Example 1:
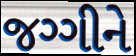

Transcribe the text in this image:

જગ્ગીને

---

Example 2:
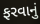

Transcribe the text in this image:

ફરવાનું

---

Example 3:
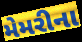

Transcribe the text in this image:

મેમરીના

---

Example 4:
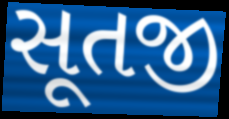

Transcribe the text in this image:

સૂતજી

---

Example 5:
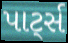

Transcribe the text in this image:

પાર્ટ્સ